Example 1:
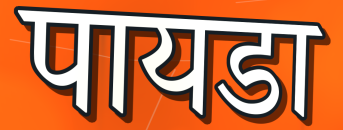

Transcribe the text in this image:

पायडा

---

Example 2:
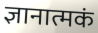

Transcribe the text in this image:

ज्ञानात्मकं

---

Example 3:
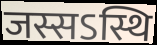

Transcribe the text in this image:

जस्सऽस्थि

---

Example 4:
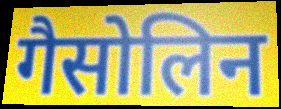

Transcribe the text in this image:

गैसोलिन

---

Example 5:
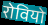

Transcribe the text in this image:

रोवियो